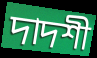
দাদশী